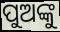
ପୁଅଙ୍କୁ